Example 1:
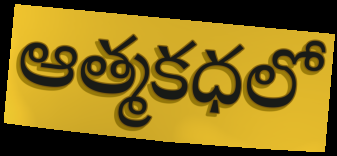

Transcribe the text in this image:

ఆత్మకధలో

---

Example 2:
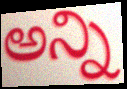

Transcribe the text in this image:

అన్ని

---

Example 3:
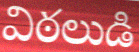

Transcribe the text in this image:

విఠలుడి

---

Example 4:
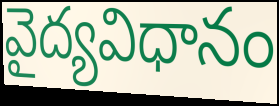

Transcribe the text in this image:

వైద్యవిధానం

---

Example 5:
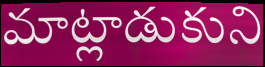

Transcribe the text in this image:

మాట్లాడుకుని